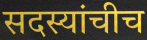
सदस्यांचीच